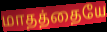
மாதத்தையே